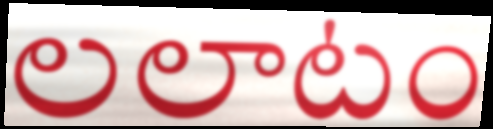
లలాటం